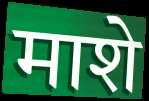
माशे